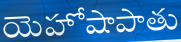
యెహోషాపాతు